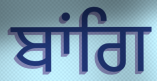
ਬਾਂਗਿ